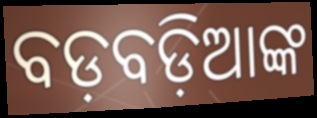
ବଡ଼ବଡ଼ିଆଙ୍କ